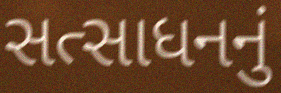
સત્સાધનનું